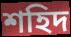
শহিদ